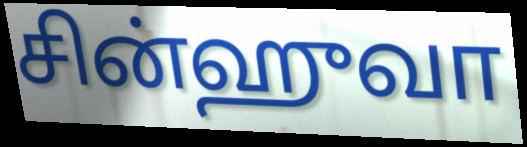
சின்ஹுவா